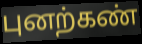
புனற்கண்